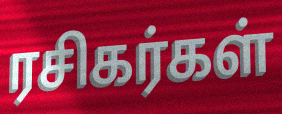
ரசிகர்கள்